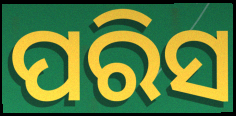
ପରିସ